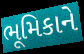
ભૂમિકાને